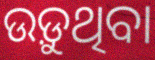
ଉଡ଼ୁଥିବା